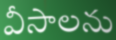
వీసాలను